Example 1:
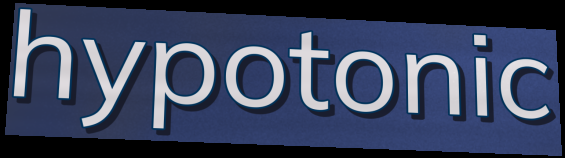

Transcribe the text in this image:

hypotonic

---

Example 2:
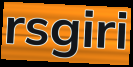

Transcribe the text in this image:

rsgiri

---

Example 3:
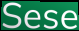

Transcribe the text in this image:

Sese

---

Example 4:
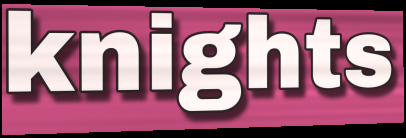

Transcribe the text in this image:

knights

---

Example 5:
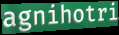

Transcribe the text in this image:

agnihotri